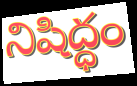
నిషిద్ధం